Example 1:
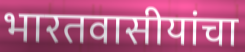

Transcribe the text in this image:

भारतवासीयांचा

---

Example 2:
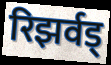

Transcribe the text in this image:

रिझर्वड्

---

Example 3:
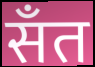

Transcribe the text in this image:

सँत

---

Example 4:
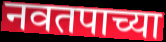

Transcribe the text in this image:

नवतपाच्या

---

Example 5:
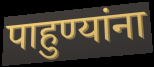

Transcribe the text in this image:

पाहुण्यांना